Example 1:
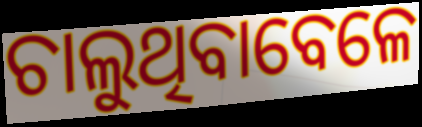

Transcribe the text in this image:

ଚାଲୁଥିବାବେଳେ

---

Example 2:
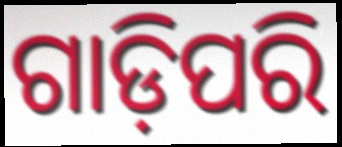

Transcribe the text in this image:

ଗାଡ଼ିପରି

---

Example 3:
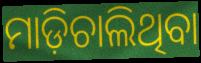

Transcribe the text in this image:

ମାଡ଼ିଚାଲିଥିବା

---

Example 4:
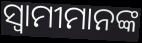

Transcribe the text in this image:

ସ୍ବାମୀମାନଙ୍କ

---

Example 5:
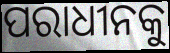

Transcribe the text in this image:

ପରାଧୀନକୁ